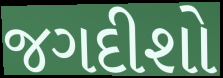
જગદીશો